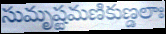
సుమృష్టమణికుణ్డలాః